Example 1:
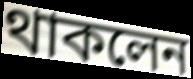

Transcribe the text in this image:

থাকলেন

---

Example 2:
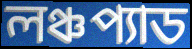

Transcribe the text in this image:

লঞ্চপ্যাড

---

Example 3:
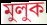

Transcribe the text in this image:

মুলুক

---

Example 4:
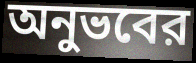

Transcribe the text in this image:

অনুভবের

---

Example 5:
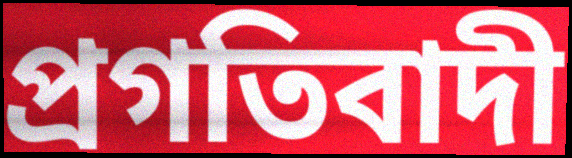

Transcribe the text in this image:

প্রগতিবাদী